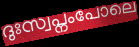
ദുഃസ്വപ്നംപോലെ